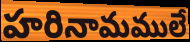
హరినామములే